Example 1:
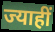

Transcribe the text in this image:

ज्याहीं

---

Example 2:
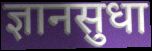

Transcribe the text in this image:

ज्ञानसुधा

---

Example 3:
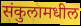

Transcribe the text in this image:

संकुलामधील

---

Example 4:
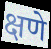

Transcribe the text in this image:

क्षणे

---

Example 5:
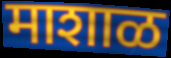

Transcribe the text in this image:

माशाळ